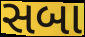
સબા